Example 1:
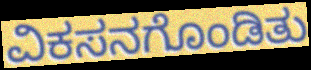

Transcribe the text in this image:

ವಿಕಸನಗೊಂಡಿತು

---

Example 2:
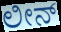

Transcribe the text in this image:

ಲೀನ್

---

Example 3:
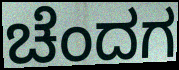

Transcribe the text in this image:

ಚೆಂದಗ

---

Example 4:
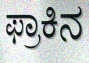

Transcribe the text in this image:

ಫ್ರಾಕಿನ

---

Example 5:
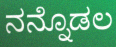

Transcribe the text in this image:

ನನ್ನೊಡಲ